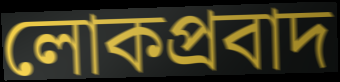
লোকপ্রবাদ